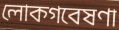
লোকগবেষণা